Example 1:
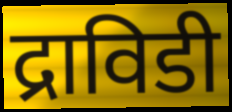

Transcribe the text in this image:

द्राविडी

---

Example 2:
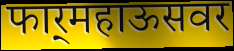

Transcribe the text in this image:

फार्महाऊसवर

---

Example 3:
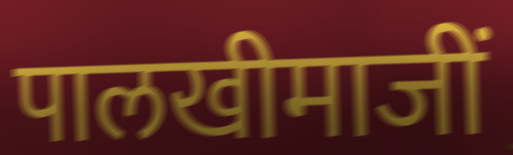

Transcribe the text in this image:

पालखीमाजीं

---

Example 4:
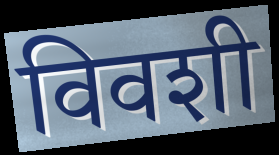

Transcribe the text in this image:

विवशी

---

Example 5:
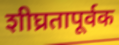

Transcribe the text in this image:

शीघ्रतापूर्वक